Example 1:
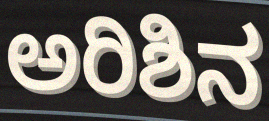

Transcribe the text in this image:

ಅರಿಶಿನ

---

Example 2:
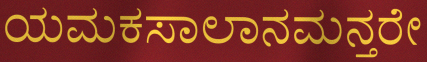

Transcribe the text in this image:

ಯಮಕಸಾಲಾನಮನ್ತರೇ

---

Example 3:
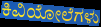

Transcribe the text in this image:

ಕಿವಿಯೋಲೆಗಳು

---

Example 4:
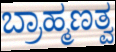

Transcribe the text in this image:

ಬ್ರಾಹ್ಮಣತ್ವ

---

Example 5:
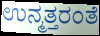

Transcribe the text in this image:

ಉನ್ಮತ್ತರಂತೆ